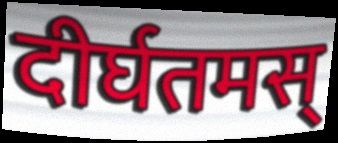
दीर्घतमस्